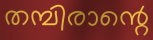
തമ്പിരാന്റെ